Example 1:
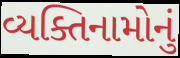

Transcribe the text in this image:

વ્યક્તિનામોનું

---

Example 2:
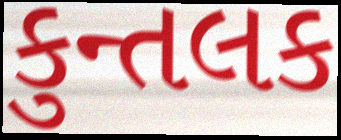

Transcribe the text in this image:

કુન્તલક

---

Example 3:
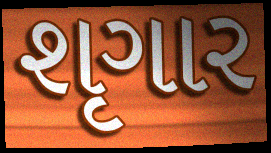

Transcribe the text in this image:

શૃગાર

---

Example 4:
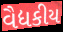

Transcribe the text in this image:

વૈદ્યકીય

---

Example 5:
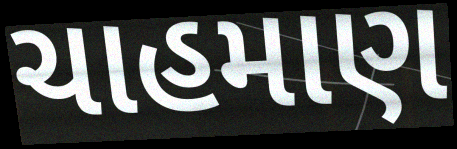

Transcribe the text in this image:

ચાહમાણ